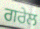
ਗਰੇਲ